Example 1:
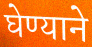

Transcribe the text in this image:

घेण्याने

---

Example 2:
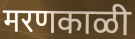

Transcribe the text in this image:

मरणकाळी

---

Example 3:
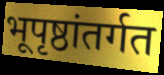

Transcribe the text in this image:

भूपृष्ठांतर्गत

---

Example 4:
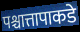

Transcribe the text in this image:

पश्चात्तापाकडे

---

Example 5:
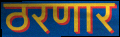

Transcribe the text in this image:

ठरणार